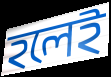
হলেই